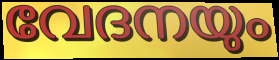
വേദനയും